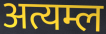
अत्यम्ल